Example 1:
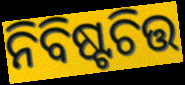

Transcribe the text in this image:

ନିବିଷ୍ଟଚିତ୍ତ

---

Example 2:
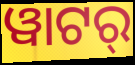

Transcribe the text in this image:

ୱାଟର୍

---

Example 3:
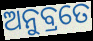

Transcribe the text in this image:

ଅନୁବ୍ରତେ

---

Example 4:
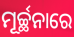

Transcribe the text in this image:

ମୂର୍ଚ୍ଛନାରେ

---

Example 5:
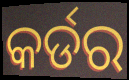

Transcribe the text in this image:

କର୍ଡର